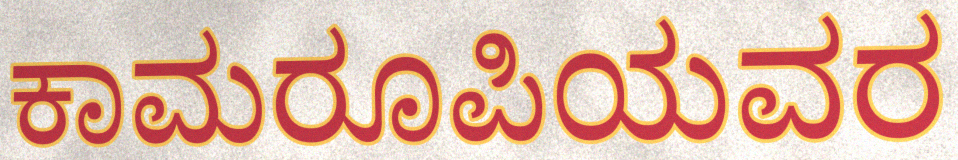
ಕಾಮರೂಪಿಯವರ